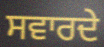
ਸਵਾਰਦੇ